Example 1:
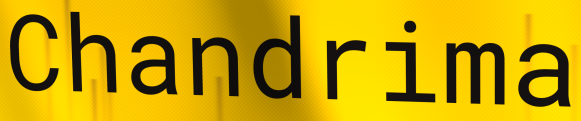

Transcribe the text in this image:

Chandrima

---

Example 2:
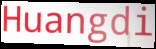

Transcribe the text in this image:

Huangdi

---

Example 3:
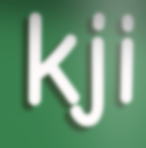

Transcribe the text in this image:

kji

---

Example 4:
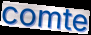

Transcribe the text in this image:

comte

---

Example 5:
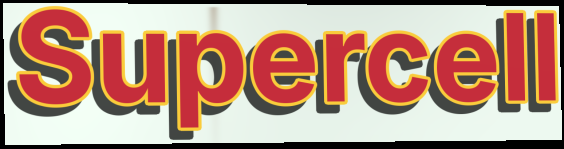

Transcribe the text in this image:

Supercell